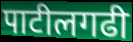
पाटीलगढी